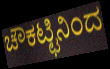
ಚೌಕಟ್ಟಿನಿಂದ